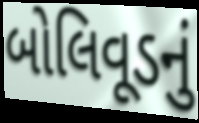
બોલિવૂડનું